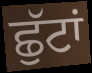
ਛੁੱਟਾਂ